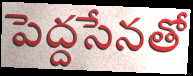
పెద్దసేనతో